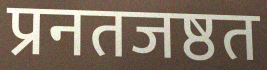
प्रनतजष्ठत